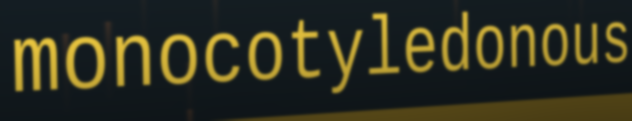
monocotyledonous